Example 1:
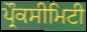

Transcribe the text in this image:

ਪ੍ਰੌਕਸੀਮਿਟੀ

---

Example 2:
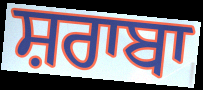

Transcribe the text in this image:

ਸ਼ਰਾਬਾ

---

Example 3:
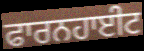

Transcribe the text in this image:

ਫਾਰਨਹਾਈਟ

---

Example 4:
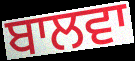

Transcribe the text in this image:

ਬਾਲਵਾ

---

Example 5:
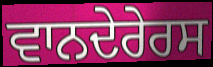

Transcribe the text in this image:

ਵਾਨਦੇਰੇਰਸ